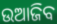
ଉଆଜିବ